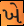
ખે